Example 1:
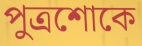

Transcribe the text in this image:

পুত্রশোকে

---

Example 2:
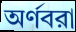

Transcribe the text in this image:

অর্ণবরা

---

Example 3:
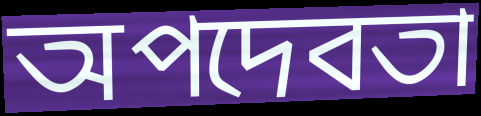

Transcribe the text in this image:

অপদেবতা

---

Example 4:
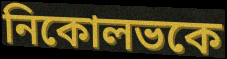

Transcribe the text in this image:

নিকোলভকে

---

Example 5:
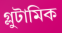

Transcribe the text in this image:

গ্লুটামিক